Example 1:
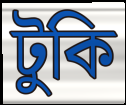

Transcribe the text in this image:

টুকি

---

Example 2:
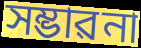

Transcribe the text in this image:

সম্ভাৱনা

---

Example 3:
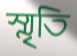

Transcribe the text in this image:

স্মৃতি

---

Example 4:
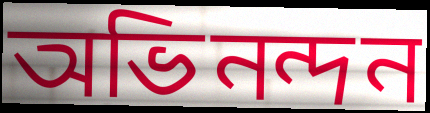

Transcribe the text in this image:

অভিনন্দন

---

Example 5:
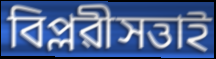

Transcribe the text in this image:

বিপ্লৱীসত্তাই